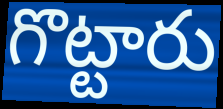
గొట్టారు